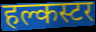
हल्कस्टर